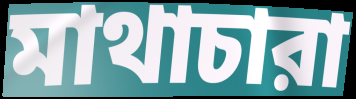
মাথাচারা